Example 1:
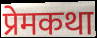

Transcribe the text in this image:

प्रेमकथा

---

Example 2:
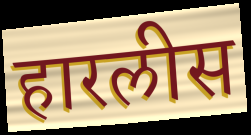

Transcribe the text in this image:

हारलीस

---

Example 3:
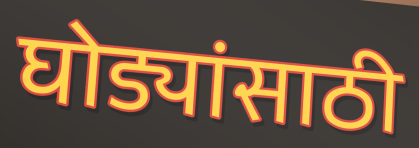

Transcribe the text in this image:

घोड्यांसाठी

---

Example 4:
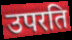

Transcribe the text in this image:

उपरति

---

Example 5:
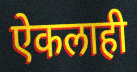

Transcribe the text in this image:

ऐकलाही